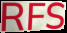
RFS